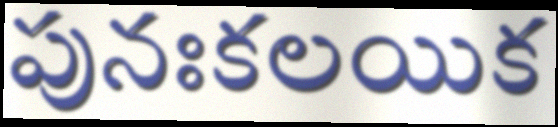
పునఃకలయిక